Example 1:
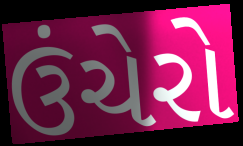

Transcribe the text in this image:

ઉંચેરો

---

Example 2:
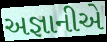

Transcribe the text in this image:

અજ્ઞાનીએ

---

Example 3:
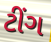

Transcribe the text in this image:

ટીંગ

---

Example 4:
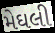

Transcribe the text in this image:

મેઘલી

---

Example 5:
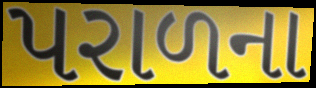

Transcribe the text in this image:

પરાળના